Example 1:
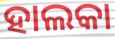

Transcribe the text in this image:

ହାଲକା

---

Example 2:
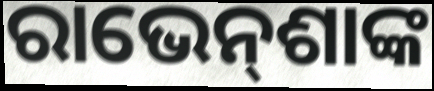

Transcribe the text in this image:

ରାଭେନ୍‌ଶାଙ୍କ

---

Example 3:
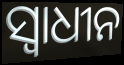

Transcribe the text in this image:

ସ୍ଵାଧୀନ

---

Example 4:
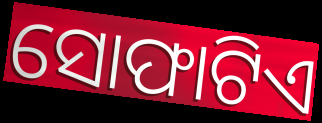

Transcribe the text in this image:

ସୋଫାଟିଏ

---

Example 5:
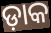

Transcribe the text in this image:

ଡ଼ାକ